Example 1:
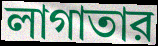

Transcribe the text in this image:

লাগাতার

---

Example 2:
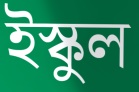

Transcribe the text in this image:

ইস্কুল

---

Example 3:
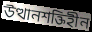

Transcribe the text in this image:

উত্থানশক্তিহীন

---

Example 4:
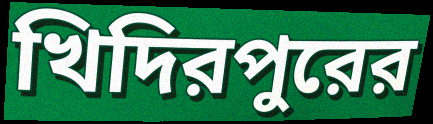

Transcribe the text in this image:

খিদিরপুরের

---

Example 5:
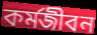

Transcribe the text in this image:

কর্মজীবন